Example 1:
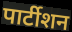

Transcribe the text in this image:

पार्टीशन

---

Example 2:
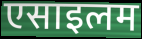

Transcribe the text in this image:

एसाइलम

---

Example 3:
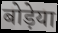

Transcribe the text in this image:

बोड़ेया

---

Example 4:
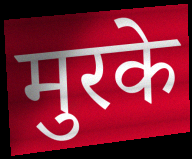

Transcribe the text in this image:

मुरके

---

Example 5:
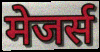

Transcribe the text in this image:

मेजर्स